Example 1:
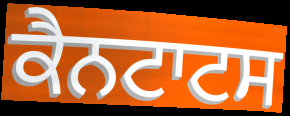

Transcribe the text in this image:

ਕੈਨਟਾਟਸ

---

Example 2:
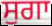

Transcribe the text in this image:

ਸੁਗਾ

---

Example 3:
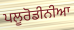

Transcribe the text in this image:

ਪਲੂਰੋਡੀਨੀਆ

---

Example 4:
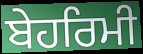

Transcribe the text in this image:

ਬੇਹਰਿਮੀ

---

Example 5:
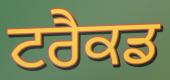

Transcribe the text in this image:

ਟਰੈਕਡ